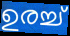
ഉരച്ച്